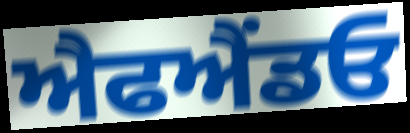
ਐਫਐਂਡਓ